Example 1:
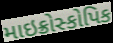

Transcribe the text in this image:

માઇક્રોસ્કોપિક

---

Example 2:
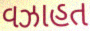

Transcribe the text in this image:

વઝાહત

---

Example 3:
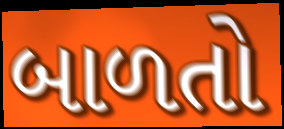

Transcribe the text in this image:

બાળતો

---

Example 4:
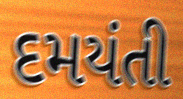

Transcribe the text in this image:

દમયંતી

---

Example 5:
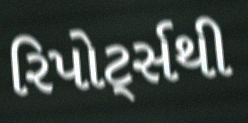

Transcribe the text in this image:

રિપોર્ટ્સથી